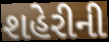
શહેરીની